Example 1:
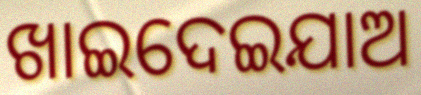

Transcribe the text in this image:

ଖାଇଦେଇଯାଅ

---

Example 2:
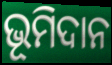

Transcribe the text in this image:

ଭୂମିଦାନ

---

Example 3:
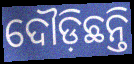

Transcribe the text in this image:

ଦୌଡ଼ିଛନ୍ତି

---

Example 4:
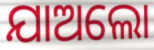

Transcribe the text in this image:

ଯାଅଲୋ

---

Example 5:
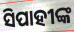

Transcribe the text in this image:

ସିପାହୀଙ୍କ